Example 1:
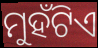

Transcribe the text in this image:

ମୁହଁଟିଏ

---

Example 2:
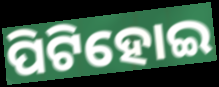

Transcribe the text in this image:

ପିଟିହୋଇ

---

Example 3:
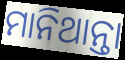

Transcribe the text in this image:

ମାନିଥାନ୍ତା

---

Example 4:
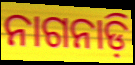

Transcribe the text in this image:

ନାଗନାଡ଼ି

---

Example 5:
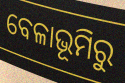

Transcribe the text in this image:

ବେଳାଭୂମିରୁ